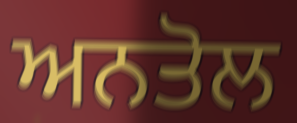
ਅਨਤੋਲ